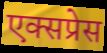
एक्सप्रेस